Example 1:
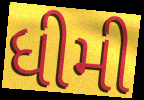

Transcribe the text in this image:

ધીમી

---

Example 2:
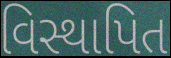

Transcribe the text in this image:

વિસ્થાપિત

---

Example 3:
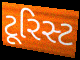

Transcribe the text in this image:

ટૂરિસ્ટ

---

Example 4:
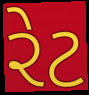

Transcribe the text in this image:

રેટ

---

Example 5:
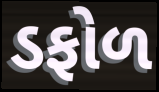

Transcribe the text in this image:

ડફોળ